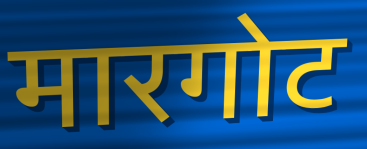
मारगोट